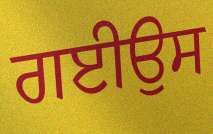
ਗਈਉਸ